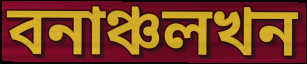
বনাঞ্চলখন